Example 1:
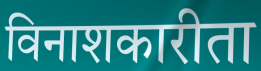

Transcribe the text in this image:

विनाशकारीता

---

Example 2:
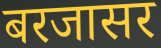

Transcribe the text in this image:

बरजासर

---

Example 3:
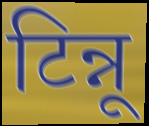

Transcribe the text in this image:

टिन्नू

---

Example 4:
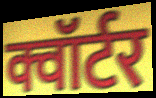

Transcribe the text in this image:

क्‍वॉर्टर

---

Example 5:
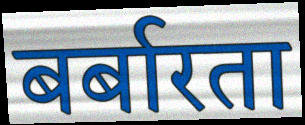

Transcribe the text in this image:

बर्बारता